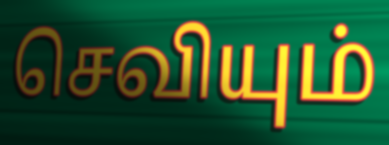
செவியும்